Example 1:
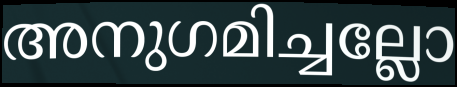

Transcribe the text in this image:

അനുഗമിച്ചല്ലോ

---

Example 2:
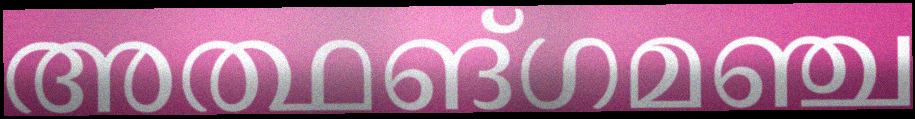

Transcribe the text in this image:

അത്ഥങ്ഗമഞ്ച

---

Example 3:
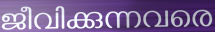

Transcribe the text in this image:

ജീവിക്കുന്നവരെ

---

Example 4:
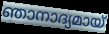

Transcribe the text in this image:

ഞാനാദ്യമായ്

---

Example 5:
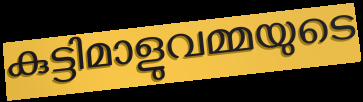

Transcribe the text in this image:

കുട്ടിമാളുവമ്മയുടെ